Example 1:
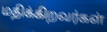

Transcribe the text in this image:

மதிக்கிறவர்கள்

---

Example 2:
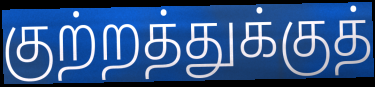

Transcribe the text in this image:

குற்றத்துக்குத்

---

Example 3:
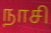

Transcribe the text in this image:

நாசி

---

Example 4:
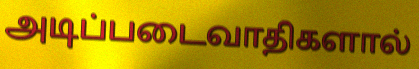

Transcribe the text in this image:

அடிப்படைவாதிகளால்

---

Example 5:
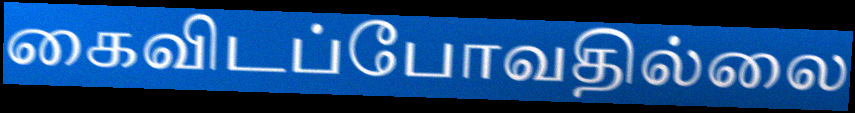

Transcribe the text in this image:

கைவிடப்போவதில்லை